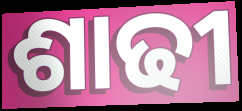
ଶାଢୀ